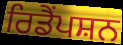
ਰਿਡੈਂਪਸ਼ਨ